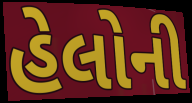
હેલોની